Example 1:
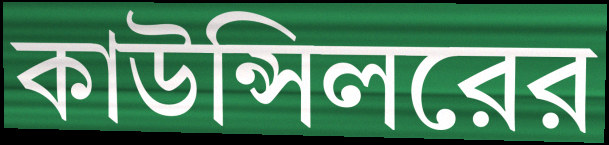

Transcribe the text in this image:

কাউন্সিলরের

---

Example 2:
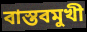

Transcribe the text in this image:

বাস্তবমুখী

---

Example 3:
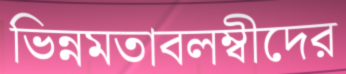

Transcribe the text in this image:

ভিন্নমতাবলম্বীদের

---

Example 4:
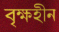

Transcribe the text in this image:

বৃক্ষহীন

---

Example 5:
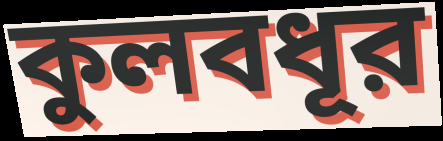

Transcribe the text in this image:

কুলবধূর